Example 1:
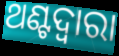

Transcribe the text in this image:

ଥଣ୍ଟଦ୍ୱାରା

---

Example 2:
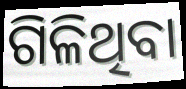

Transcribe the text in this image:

ଗିଳିଥିବା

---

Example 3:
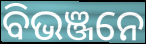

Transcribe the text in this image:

ବିଭଞ୍ଜନେ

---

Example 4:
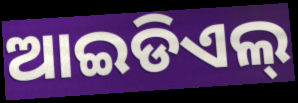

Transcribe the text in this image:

ଆଇଡିଏଲ୍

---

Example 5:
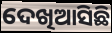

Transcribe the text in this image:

ଦେଖିଆସିଛି